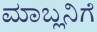
ಮಾಬ್ಲನಿಗೆ